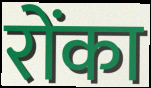
रोंका